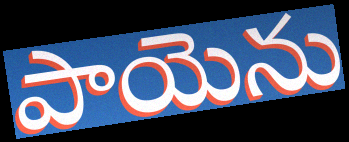
పాయెను